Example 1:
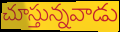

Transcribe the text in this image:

చూస్తున్నవాడు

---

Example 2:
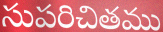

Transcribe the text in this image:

సుపరిచితము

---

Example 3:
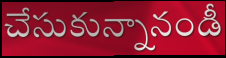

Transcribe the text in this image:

చేసుకున్నానండీ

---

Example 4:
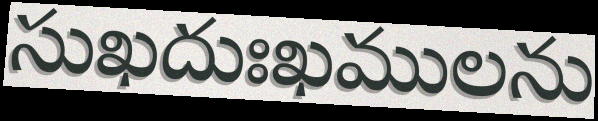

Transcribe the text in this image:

సుఖదుఃఖములను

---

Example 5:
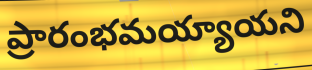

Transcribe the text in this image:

ప్రారంభమయ్యాయని